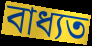
বাধ্যত